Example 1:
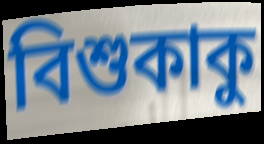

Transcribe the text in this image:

বিশুকাকু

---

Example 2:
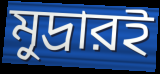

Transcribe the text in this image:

মুদ্রারই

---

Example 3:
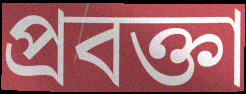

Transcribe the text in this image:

প্রবক্তা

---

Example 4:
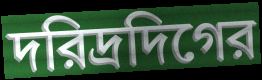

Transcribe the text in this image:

দরিদ্রদিগের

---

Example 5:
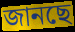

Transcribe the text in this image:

জানছে